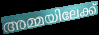
അമ്മയിലേക്ക്